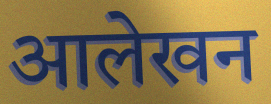
आलेखन